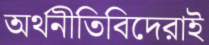
অর্থনীতিবিদেরাই